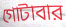
গোটাবার